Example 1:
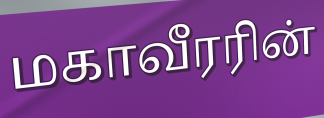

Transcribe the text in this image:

மகாவீரரின்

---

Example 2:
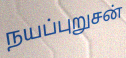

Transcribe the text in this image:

நயப்புறுசன்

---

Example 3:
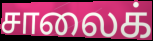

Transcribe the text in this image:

சாலைக்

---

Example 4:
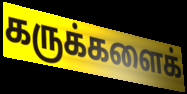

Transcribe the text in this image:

கருக்களைக்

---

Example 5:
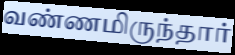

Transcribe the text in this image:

வண்ணமிருந்தார்